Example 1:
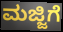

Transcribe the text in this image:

ಮಜ್ಜಿಗೆ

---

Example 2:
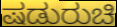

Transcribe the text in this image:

ಷಡುರುಚಿ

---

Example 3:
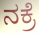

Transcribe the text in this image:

ನಕ್ರೆ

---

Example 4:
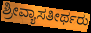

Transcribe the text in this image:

ಶ್ರೀವ್ಯಾಸತೀರ್ಥರು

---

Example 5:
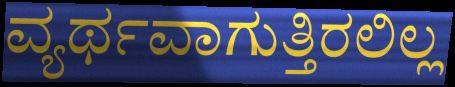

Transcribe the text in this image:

ವ್ಯರ್ಥವಾಗುತ್ತಿರಲಿಲ್ಲ